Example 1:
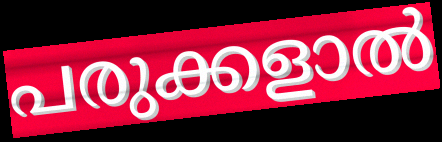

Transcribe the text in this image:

പരുക്കളാൽ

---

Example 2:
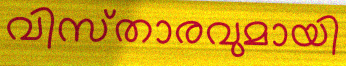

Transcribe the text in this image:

വിസ്‌താരവുമായി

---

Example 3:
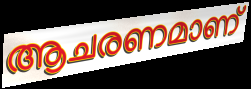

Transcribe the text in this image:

ആചരണമാണ്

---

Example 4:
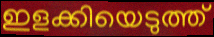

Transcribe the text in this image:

ഇളക്കിയെടുത്ത്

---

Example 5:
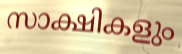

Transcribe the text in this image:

സാക്ഷികളും